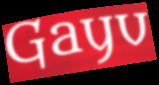
Gayu